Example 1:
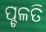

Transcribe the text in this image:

ପ୍ଚଳତି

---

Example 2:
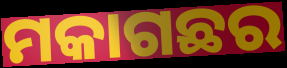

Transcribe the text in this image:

ମକାଗଛର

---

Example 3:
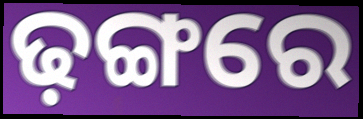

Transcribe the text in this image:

ଢ଼ଙ୍ଗରେ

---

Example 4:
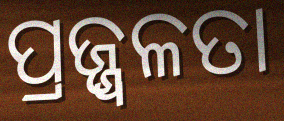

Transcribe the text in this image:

ପ୍ରଜ୍ଜ୍ୱଳତା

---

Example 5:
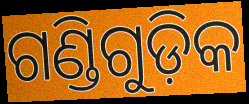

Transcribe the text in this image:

ଗଣ୍ଡିଗୁଡ଼ିକ